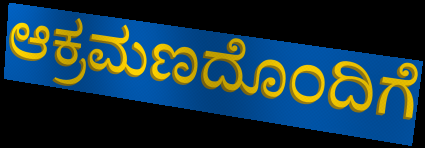
ಆಕ್ರಮಣದೊಂದಿಗೆ